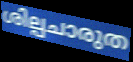
ശില്പചാരുത